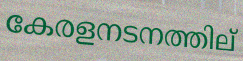
കേരളനടനത്തില്